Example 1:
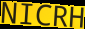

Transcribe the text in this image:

NICRH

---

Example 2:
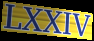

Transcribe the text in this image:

LXXIV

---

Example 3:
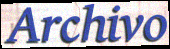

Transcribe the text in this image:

Archivo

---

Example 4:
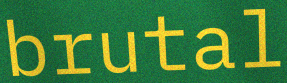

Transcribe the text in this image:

brutal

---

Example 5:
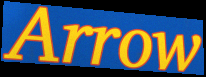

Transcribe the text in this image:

Arrow